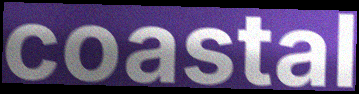
coastal